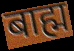
बाह्म